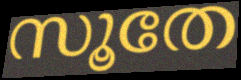
സൂതേ